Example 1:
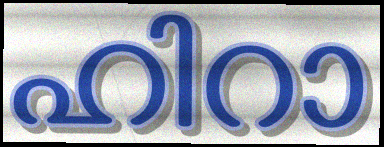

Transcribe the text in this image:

ഹിറാ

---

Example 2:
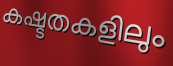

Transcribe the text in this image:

കഷ്ടതകളിലും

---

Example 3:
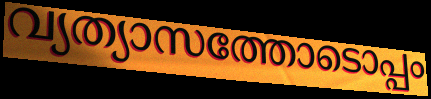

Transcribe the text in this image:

വ്യത്യാസത്തോടൊപ്പം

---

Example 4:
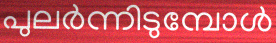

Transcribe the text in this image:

പുലർന്നിടുമ്പോൾ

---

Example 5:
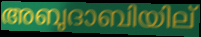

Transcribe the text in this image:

അബുദാബിയില്